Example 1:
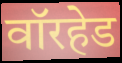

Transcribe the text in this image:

वॉरहेड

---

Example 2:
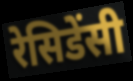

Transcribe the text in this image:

रेसिडेंसी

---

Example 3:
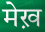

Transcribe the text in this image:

मेख़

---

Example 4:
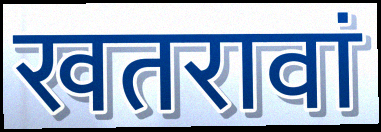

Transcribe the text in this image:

खतरावां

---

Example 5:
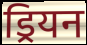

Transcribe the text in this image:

ड्रियन